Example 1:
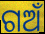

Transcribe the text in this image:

ଗଅଁ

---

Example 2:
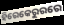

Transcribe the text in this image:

ହିରେକେରୁରରେ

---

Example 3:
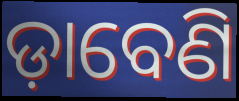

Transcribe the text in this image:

ଡ଼ାବେଣି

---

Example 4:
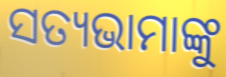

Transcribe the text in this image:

ସତ୍ୟଭାମାଙ୍କୁ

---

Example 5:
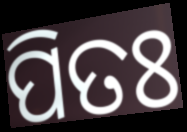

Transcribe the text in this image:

ପିତଃ